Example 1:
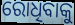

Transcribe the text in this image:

ରୋଧିବାକୁ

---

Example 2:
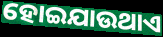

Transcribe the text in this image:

ହୋଇଯାଉଥାଏ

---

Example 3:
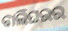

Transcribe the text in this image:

ବାଲିଘରର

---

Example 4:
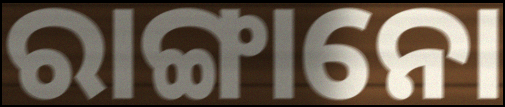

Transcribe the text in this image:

ରାଙ୍ଗାନୋ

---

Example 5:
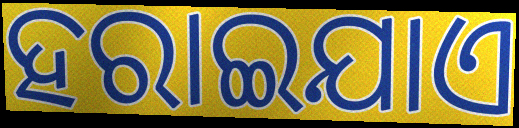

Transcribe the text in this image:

ହରାଇଯାଏ